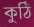
কুঠি